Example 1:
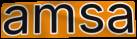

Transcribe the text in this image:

amsa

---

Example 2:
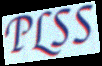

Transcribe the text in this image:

PLSS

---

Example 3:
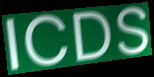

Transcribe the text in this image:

ICDS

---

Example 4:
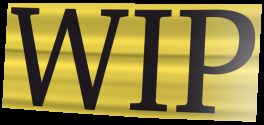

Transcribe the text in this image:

WIP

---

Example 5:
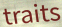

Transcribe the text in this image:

traits